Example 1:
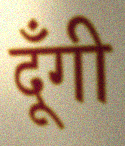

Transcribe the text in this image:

दूँगी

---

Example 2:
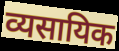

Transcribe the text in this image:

व्यसायिक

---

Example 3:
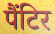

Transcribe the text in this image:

पैंटिर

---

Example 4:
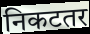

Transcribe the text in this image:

निकटतर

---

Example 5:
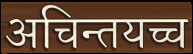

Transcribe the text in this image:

अचिन्तयच्च